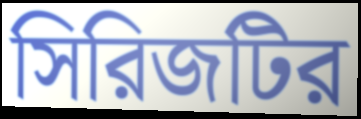
সিরিজটির